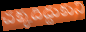
చక్కదిద్దుకుని